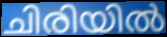
ചിരിയിൽ